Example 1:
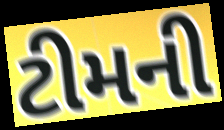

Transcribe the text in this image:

ટીમની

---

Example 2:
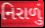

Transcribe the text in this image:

નિરાળું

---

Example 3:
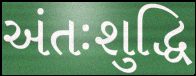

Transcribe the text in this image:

અંતઃશુદ્ધિ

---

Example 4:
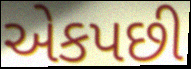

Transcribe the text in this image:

એકપછી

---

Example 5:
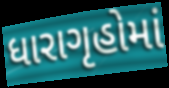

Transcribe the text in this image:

ધારાગૃહોમાં